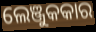
ଲେଞ୍ଜୁକକାର